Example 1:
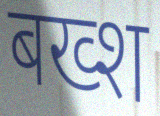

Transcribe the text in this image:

बख्श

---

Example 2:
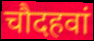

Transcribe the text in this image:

चौदहवां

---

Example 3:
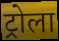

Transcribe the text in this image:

ट्रोला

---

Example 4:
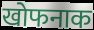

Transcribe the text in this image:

खोफनाक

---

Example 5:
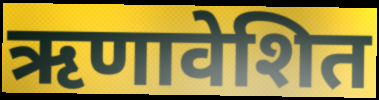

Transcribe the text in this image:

ऋणावेशित